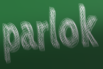
parlok